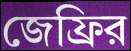
জেফ্রির